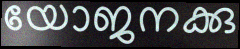
യോജനക്കു